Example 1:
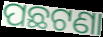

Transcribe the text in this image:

ପଛଟଣା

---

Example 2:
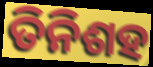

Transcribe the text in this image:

ତିନିଶହ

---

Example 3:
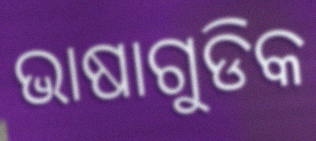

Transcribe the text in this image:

ଭାଷାଗୁଡିକ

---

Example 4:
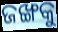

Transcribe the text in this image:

ଜଙ୍ଖକୁ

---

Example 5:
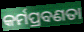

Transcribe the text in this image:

କର୍ମପ୍ରବଣତା